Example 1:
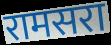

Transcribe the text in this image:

रामसरा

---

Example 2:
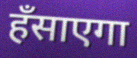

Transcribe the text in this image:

हँसाएगा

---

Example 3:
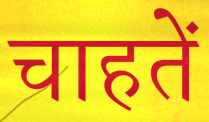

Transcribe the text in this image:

चाहतें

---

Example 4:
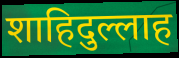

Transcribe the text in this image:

शाहिदुल्लाह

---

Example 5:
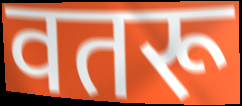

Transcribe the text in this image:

वतरू